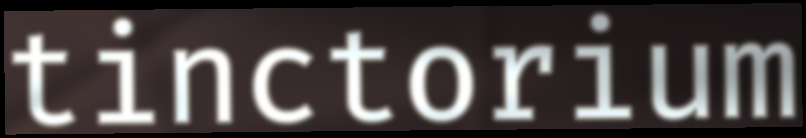
tinctorium